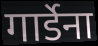
गार्डेना